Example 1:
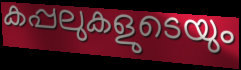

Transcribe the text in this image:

കപ്പലുകളുടെയും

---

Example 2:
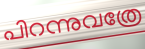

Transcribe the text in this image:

പിറന്നുവത്രേ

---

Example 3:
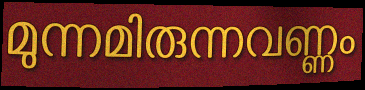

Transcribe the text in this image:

മുന്നമിരുന്നവണ്ണം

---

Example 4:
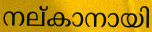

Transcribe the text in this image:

നല്കാനായി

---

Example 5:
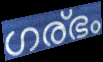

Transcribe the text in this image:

ഗര്ഭം